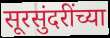
सूरसुंदरींच्या